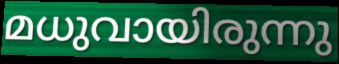
മധുവായിരുന്നു